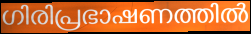
ഗിരിപ്രഭാഷണത്തിൽ